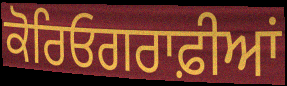
ਕੋਰਿਓਗਰਾਫ਼ੀਆਂ